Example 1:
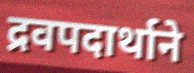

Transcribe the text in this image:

द्रवपदार्थाने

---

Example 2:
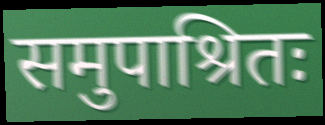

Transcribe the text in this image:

समुपाश्रितः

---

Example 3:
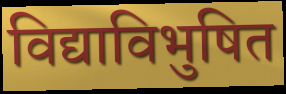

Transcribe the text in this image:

विद्याविभुषित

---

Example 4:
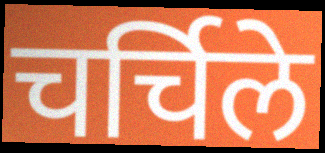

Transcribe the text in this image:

चर्चिले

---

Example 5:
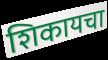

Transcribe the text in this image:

शिकायचा